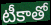
టీకాతో